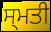
ਸ੍ਮਤੀ